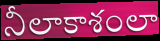
నీలాకాశంలా